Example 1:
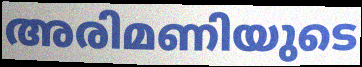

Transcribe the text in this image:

അരിമണിയുടെ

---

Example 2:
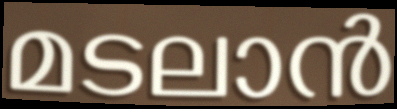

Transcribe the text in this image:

മടലാൻ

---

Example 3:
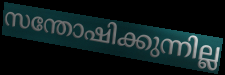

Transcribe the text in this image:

സന്തോഷിക്കുന്നില്ല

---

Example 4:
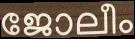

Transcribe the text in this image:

ജോലീം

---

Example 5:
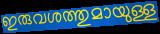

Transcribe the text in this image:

ഇരുവശത്തുമായുള്ള